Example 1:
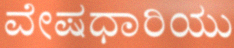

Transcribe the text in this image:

ವೇಷಧಾರಿಯು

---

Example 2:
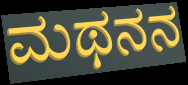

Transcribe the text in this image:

ಮಥನನ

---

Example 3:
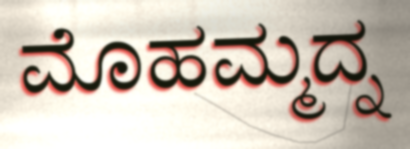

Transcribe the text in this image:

ಮೊಹಮ್ಮದ್ನ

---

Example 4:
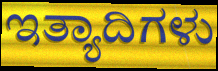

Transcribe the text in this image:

ಇತ್ಯಾದಿಗಳು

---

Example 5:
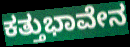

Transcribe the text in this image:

ಕತ್ತುಭಾವೇನ